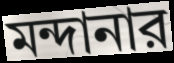
মন্দানার